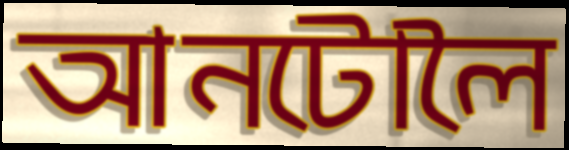
আনটোলৈ